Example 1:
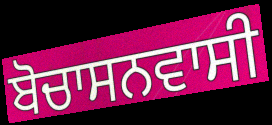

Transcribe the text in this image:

ਬੋਚਾਸਨਵਾਸੀ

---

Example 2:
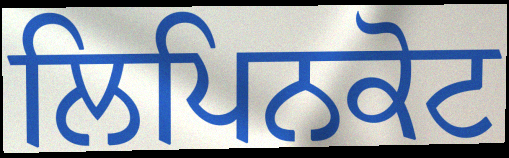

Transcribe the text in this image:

ਲਿਪਿਨਕੋਟ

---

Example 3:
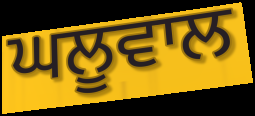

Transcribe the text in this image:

ਘਲੂਵਾਲ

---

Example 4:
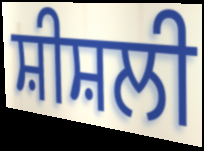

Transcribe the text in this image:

ਸ਼ੀਸ਼ਲੀ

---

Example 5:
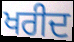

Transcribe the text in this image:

ਖਰੀਦ